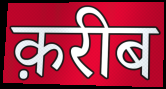
क़रीब